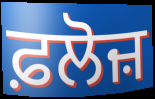
ਫ਼ਲੋਜ਼